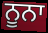
ਨੂਨਾ